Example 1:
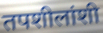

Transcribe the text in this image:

तपशीलांशी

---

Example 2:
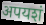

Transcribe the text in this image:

अपयशं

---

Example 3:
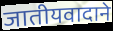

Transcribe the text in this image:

जातीयवादाने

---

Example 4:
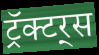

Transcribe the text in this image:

ट्रॅक्टर्स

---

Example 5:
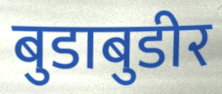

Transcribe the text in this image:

बुडाबुडीर